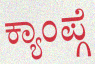
ಕ್ಯಾಂಪ್ಗೆ